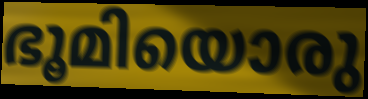
ഭൂമിയൊരു